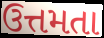
ઉત્તમતા